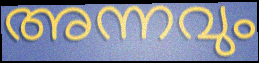
അന്നവും